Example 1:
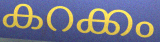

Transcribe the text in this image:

കറക്കം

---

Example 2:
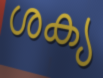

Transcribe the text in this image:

ശക്യ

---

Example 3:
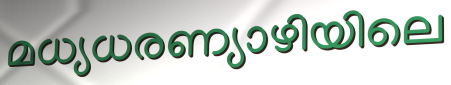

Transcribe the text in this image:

മധ്യധരണ്യാഴിയിലെ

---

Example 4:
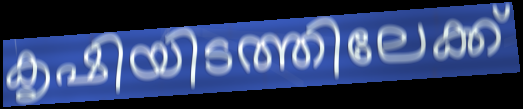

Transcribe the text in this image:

കൃഷിയിടത്തിലേക്ക്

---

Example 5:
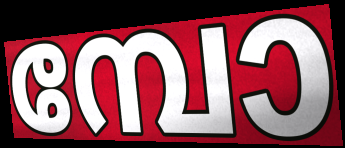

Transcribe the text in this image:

മ്പോ